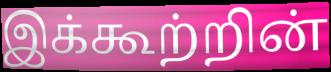
இக்கூற்றின்